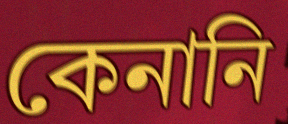
কেনানি